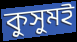
কুসুমই